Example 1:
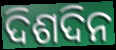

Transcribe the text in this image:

ଦିଶଦିନ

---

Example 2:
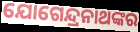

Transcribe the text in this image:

ଯୋଗେନ୍ଦ୍ରନାଥଙ୍କର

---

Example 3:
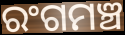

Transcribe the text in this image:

ରଂଗମଞ୍ଚ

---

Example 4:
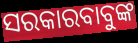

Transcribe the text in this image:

ସରକାରବାବୁଙ୍କ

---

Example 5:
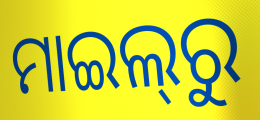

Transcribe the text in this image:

ମାଇଲ୍‌ରୁ